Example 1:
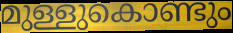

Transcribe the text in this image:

മുള്ളുകൊണ്ടും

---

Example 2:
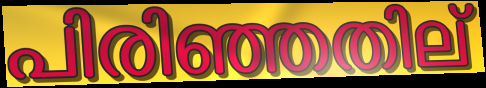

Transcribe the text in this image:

പിരിഞ്ഞതില്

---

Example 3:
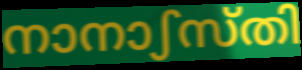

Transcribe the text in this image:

നാനാഽസ്തി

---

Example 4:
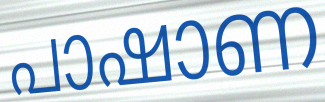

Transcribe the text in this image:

പാഷാണ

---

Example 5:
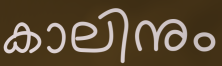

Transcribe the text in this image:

കാലിനും